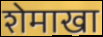
शेमाखा